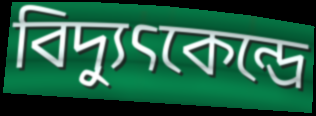
বিদ্যুৎকেন্দ্রে